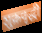
शुक्रवृद्धी